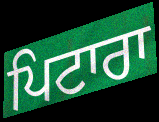
ਪਿਟਾਰਾ